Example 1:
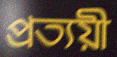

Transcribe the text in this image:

প্ৰত্যয়ী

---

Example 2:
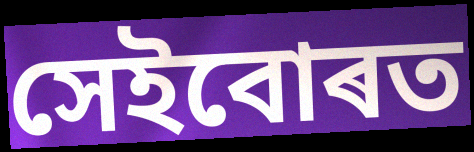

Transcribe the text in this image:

সেইবোৰত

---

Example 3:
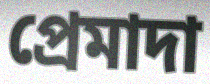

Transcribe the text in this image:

প্ৰেমাদা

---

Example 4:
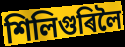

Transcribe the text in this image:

শিলিগুৰিলৈ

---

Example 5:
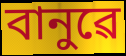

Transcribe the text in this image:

বানুৱে